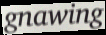
gnawing